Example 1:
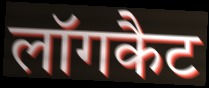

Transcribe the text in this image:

लॉगकैट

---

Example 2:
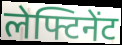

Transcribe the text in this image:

लेफ्टिनेंट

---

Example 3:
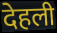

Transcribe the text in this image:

देहली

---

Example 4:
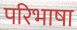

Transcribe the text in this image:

परिभाषा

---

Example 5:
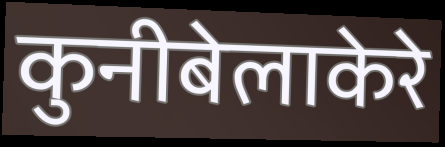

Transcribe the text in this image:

कुनीबेलाकेरे